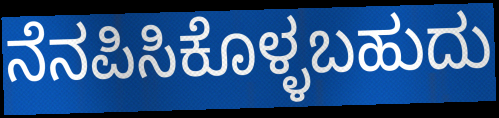
ನೆನಪಿಸಿಕೊಳ್ಳಬಹುದು